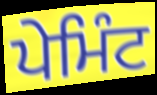
ਪੇਮਿੰਟ